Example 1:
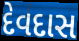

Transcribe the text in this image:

દેવદાસ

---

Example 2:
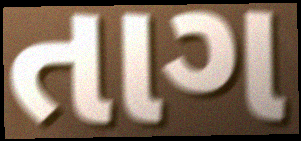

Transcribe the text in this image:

તાગ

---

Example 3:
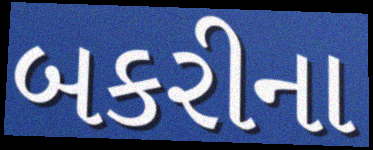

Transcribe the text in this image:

બકરીના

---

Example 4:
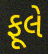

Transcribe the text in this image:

ફૂલે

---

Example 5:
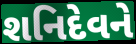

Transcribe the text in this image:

શનિદેવને